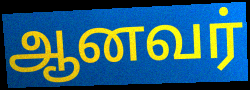
ஆனவர்